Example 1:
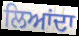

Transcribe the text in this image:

ਲਿਆਂਦਾ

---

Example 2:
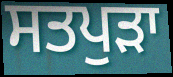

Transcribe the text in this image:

ਸਤਪੁੜਾ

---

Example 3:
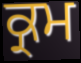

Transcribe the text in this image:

ਕ੍ਰਮ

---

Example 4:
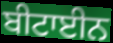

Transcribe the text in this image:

ਬੀਟਾਈਨ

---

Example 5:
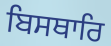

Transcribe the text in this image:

ਬਿਸਥਾਰਿ